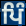
ਪਿੰ